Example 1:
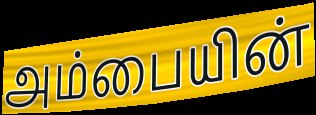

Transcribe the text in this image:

அம்பையின்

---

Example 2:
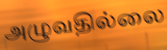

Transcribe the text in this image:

அழுவதில்லை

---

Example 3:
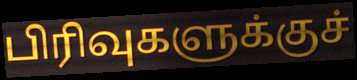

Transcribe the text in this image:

பிரிவுகளுக்குச்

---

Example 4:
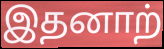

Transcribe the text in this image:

இதனாற்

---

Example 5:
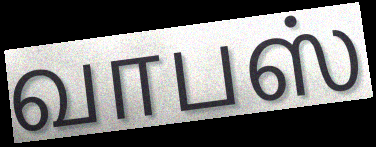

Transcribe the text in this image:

வாபஸ்